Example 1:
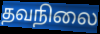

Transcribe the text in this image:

தவநிலை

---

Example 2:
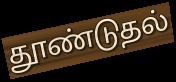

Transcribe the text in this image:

தூண்டுதல்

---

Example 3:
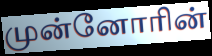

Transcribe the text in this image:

முன்னோரின்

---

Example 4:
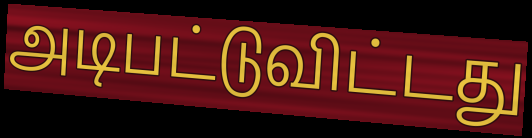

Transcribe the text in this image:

அடிபட்டுவிட்டது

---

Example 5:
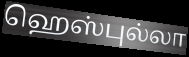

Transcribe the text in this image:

ஹெஸ்புல்லா